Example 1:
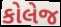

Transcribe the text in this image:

કોલેજ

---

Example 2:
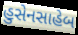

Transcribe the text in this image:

હુસેનસાહેબ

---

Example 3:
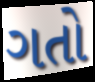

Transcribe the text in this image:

ગતો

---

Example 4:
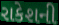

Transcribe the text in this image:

રાકેશની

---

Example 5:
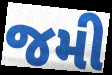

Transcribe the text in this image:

જમી